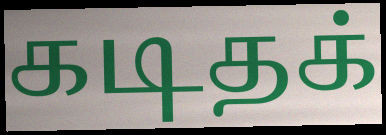
கடிதக்